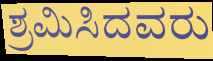
ಶ್ರಮಿಸಿದವರು